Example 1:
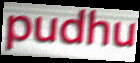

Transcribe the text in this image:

pudhu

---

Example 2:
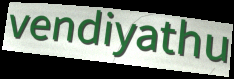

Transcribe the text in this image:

vendiyathu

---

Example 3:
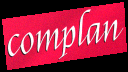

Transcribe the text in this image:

complan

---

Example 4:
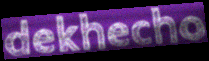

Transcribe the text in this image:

dekhecho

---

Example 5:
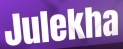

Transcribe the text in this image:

Julekha